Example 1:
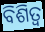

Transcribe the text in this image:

ବିଶିତ୍ଵ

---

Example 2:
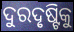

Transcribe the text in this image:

ଦୁରଦୃଷ୍ଟିକୁ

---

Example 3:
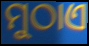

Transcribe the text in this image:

ମୁଠାଏ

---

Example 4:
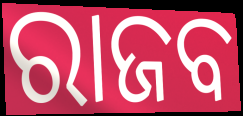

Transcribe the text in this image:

ରାଜବ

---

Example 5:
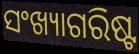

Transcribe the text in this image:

ସଂଖ୍ୟାଗରିଷ୍ଟ